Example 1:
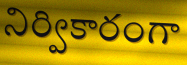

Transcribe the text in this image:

నిర్వికారంగా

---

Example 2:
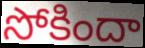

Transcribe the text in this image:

సోకిందా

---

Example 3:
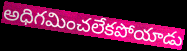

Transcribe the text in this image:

అధిగమించలేకపోయాడు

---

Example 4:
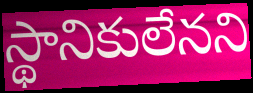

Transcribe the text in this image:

స్థానికులేనని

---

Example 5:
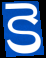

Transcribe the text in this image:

కె